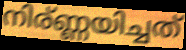
നിര്ണ്ണയിച്ചത്